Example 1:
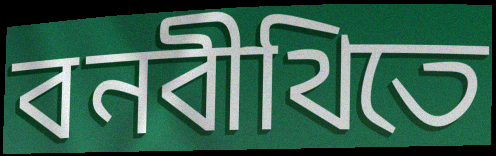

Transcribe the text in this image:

বনবীথিতে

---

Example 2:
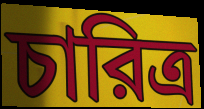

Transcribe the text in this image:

চারিত্র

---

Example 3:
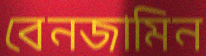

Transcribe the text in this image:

বেনজামিন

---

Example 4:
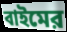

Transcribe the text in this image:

বাইমের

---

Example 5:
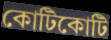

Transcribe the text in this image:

কোটিকোটি